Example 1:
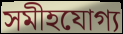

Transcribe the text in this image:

সমীহযোগ্য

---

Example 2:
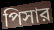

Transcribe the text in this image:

পিসার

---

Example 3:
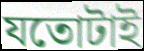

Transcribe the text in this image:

যতোটাই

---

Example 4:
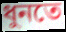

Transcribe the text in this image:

ধুনতে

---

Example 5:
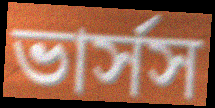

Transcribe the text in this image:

ভার্সস